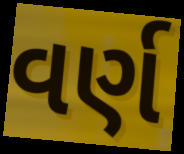
વર્ણ